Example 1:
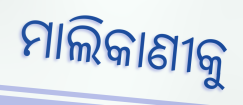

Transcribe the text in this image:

ମାଲିକାଣୀକୁ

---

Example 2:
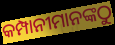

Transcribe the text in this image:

କମ୍ପାନୀମାନଙ୍କଠୁ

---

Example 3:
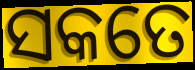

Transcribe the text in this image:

ସକତେ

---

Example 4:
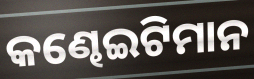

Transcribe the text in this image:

କଣ୍ଢେଇଟିମାନ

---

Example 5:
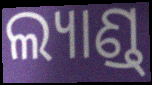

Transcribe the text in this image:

ଲ୍ୟାଣ୍ଡ୍